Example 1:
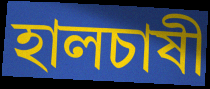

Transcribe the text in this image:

হালচাষী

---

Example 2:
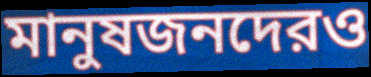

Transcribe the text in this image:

মানুষজনদেরও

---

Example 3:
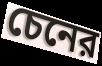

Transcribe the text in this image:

চেনের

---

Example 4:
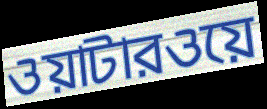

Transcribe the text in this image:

ওয়াটারওয়ে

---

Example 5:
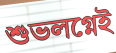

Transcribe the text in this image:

শুভলগ্নেই